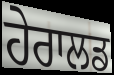
ਹੇਰਾਲਡ